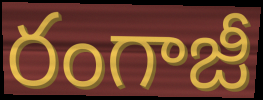
రంగాజీ